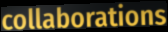
collaborations